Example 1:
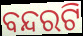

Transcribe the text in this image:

ବନ୍ଦରଟି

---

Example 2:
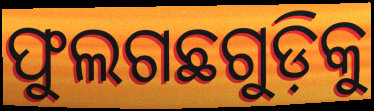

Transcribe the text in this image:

ଫୁଲଗଛଗୁଡ଼ିକୁ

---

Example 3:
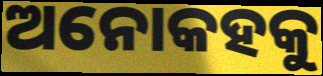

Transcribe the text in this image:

ଅନୋକହକୁ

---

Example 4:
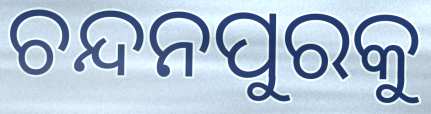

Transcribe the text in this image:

ଚନ୍ଦନପୁରକୁ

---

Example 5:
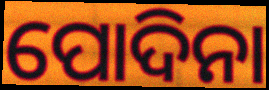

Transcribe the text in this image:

ପୋଦିନା